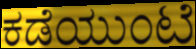
ಕಡೆಯುಂಟೆ